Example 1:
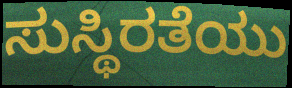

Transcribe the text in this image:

ಸುಸ್ಥಿರತೆಯು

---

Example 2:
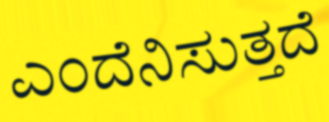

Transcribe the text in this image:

ಎಂದೆನಿಸುತ್ತದೆ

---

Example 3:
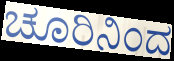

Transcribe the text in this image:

ಚೂರಿನಿಂದ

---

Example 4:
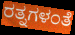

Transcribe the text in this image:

ರತ್ನಗಳಂತೆ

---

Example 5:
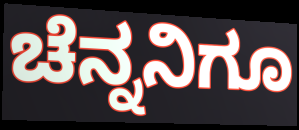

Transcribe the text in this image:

ಚೆನ್ನನಿಗೂ